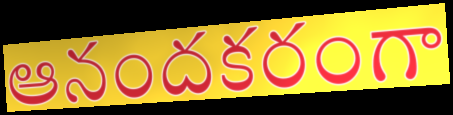
ఆనందకరంగా